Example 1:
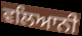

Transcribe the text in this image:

ਵਲਿਆਨੀ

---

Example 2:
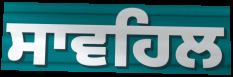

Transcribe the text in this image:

ਸਾਵਹਿਲ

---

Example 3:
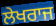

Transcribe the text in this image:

ਲੇਖਰਾਜ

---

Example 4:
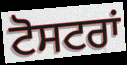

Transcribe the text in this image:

ਟੋਸਟਰਾਂ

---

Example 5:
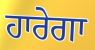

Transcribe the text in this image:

ਹਾਰੇਗਾ